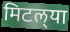
मिटल्या